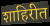
शाहिरीत